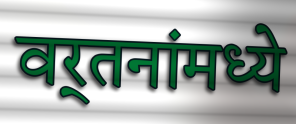
वर्तनांमध्ये